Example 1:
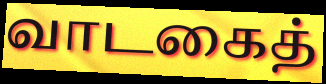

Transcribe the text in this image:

வாடகைத்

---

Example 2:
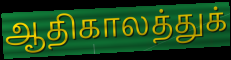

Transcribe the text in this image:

ஆதிகாலத்துக்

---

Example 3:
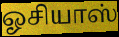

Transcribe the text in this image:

ஓசியாஸ்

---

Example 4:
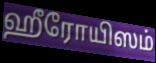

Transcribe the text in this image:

ஹீரோயிஸம்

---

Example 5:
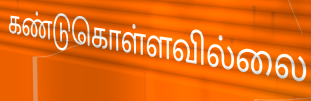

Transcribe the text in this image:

கண்டுகொள்ளவில்லை